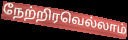
நேற்றிரவெல்லாம்